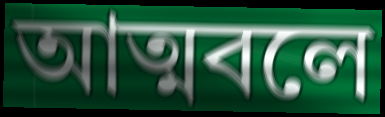
আত্মবলে